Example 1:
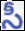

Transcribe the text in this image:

సీ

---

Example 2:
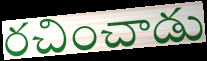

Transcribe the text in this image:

రచించాడు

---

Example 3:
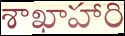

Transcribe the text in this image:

శాఖాహారి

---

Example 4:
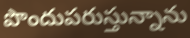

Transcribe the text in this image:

పొందుపరుస్తున్నాను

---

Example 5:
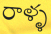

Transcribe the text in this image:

రాళ్ళ